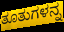
ತೂತುಗಳನ್ನ